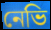
নেভি